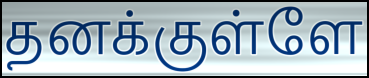
தனக்குள்ளே